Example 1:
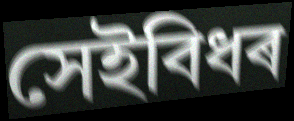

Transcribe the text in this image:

সেইবিধৰ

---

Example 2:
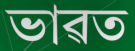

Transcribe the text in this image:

ভাৱত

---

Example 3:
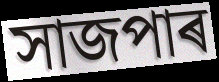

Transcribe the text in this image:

সাজপাৰ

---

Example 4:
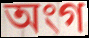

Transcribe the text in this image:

অংগ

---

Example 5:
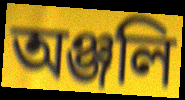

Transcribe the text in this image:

অঞ্জলি